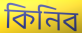
কিনিব